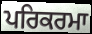
ਪਰਿਕਰਮਾ